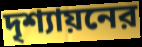
দৃশ্যায়নের